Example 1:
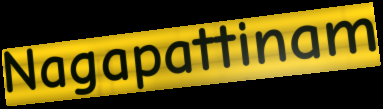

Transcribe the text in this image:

Nagapattinam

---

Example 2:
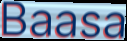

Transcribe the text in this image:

Baasa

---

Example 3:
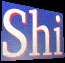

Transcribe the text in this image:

Shi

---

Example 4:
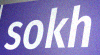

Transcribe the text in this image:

sokh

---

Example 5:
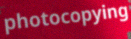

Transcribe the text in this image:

photocopying